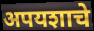
अपयशाचे